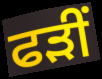
ਫੜੀਂ